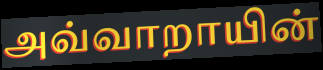
அவ்வாறாயின்